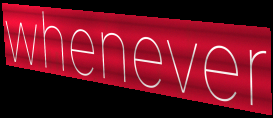
whenever